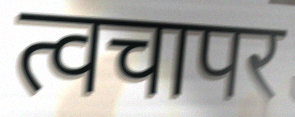
त्वचापर